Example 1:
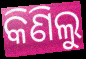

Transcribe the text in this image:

କିଣିଲୁ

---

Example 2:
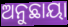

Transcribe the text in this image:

ଅନୁଛାୟା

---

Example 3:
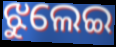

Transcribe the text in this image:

ଝୁଲେଇ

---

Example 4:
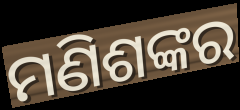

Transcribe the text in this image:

ମଣିଶଙ୍କର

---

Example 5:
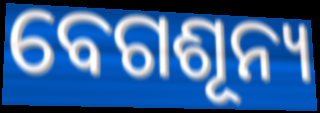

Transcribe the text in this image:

ବେଗଶୂନ୍ୟ